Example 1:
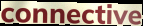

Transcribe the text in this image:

connective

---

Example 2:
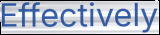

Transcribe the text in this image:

Effectively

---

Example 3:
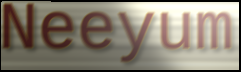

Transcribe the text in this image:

Neeyum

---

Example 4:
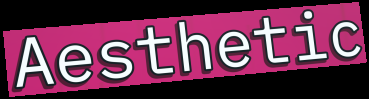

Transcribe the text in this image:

Aesthetic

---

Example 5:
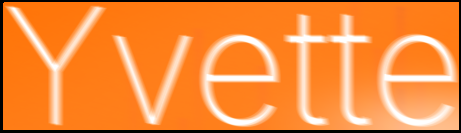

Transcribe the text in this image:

Yvette